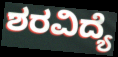
ಶರವಿದ್ಯೆ